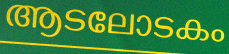
ആടലോടകം